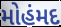
મોહંમદ